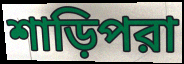
শাড়িপরা